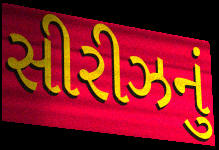
સીરીઝનું